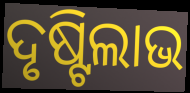
ଦୃଷ୍ଟିଲାଭ